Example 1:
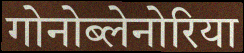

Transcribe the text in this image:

गोनोब्लेनोरिया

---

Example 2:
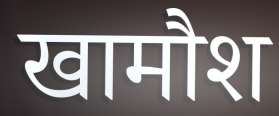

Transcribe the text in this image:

खामौश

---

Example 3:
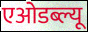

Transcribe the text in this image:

एओडब्ल्यू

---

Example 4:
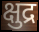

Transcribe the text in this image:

क्षुद्र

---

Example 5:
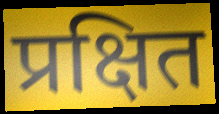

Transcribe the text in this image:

प्रक्षित